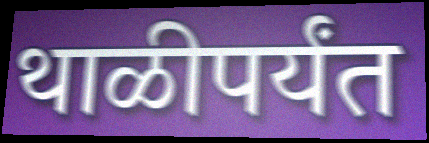
थाळीपर्यंत